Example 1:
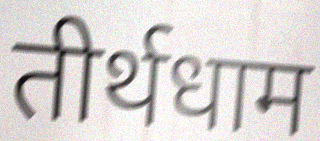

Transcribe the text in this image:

तीर्थधाम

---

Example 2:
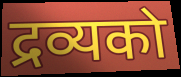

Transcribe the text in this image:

द्रव्यको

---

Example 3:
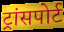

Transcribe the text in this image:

ट्रांसपोर्ट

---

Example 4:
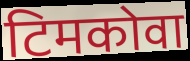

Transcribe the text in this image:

टिमकोवा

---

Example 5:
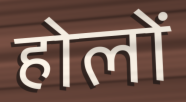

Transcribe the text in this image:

होलों